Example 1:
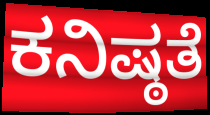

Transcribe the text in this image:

ಕನಿಷ್ಠತೆ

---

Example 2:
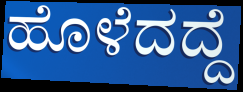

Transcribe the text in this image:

ಹೊಳೆದದ್ದೆ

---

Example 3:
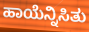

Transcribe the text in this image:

ಹಾಯೆನ್ನಿಸಿತು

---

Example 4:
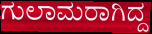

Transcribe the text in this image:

ಗುಲಾಮರಾಗಿದ್ದ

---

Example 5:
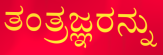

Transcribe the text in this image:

ತಂತ್ರಜ್ಞರನ್ನು